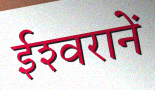
ईश्वरानें